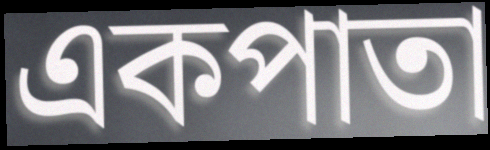
একপাতা